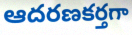
ఆదరణకర్తగా